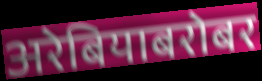
अरेबियाबरोबर